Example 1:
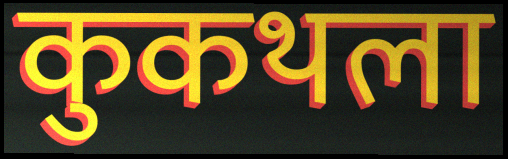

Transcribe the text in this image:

कुकथला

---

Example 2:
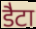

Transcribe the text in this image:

डैटा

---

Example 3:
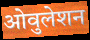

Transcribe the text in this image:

ओवुलेशन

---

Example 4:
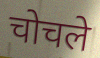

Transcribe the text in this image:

चोचले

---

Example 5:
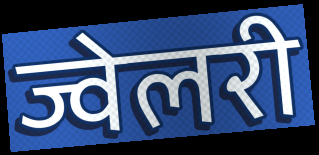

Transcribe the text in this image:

ज्वेलरी